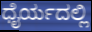
ಧೈರ್ಯದಲ್ಲಿ